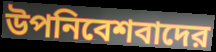
উপনিবেশবাদের